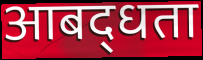
आबद्धता